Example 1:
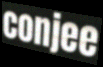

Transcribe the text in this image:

conjee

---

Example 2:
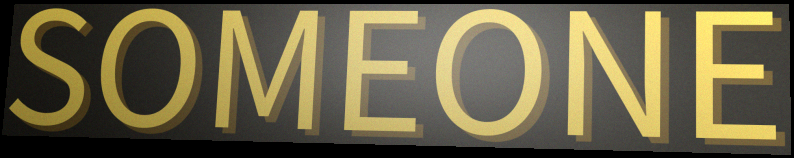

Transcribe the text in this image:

SOMEONE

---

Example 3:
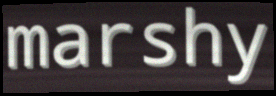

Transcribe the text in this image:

marshy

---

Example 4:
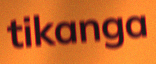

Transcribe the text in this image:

tikanga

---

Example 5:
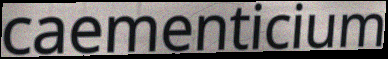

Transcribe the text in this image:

caementicium